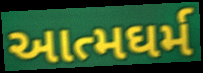
આત્મઘર્મ